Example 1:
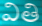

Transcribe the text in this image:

వితి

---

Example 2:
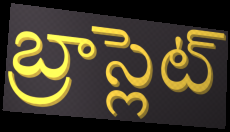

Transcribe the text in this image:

బ్రాస్లెట్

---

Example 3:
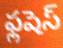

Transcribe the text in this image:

ఫ్లషెస్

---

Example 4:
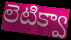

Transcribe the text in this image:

లెటిక్వా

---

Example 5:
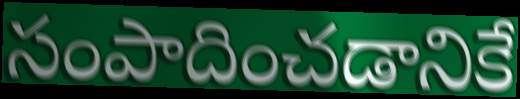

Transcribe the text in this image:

సంపాదించడానికే